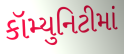
કૉમ્યુનિટીમાં